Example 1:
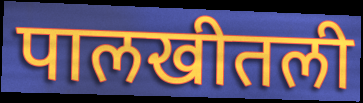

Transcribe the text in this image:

पालखीतली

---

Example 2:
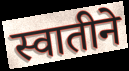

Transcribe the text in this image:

स्वातीने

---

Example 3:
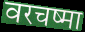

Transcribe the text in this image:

वरचष्मा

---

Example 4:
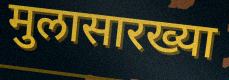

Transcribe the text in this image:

मुलासारख्या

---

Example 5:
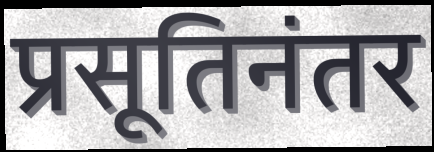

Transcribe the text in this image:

प्रसूतिनंतर